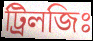
ট্রিলজিঃ